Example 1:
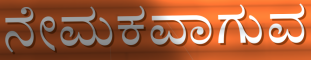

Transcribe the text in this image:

ನೇಮಕವಾಗುವ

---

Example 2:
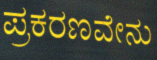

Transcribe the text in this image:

ಪ್ರಕರಣವೇನು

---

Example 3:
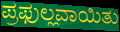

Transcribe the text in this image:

ಪ್ರಫುಲ್ಲವಾಯಿತು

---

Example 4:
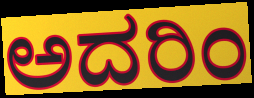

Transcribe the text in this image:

ಅದರಿಂ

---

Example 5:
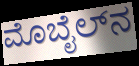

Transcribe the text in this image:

ಮೊಬೈಲ್‌ನ